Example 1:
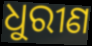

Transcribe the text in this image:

ଧୁରୀଣ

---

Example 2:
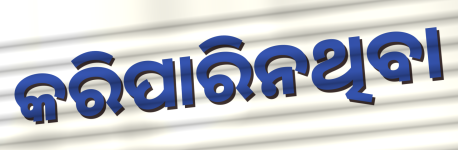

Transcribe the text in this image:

କରିପାରିନଥିବା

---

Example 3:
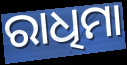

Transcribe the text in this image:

ରାଧିମା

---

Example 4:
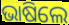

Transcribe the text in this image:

ଭାଷିଲେ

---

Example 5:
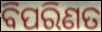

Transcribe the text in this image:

ବିପରିଣତ